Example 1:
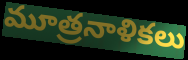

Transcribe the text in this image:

మూత్రనాళికలు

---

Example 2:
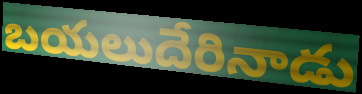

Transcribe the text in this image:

బయలుదేరినాడు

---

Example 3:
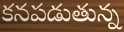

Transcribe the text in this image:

కనపడుతున్న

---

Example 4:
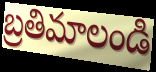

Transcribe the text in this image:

బ్రతిమాలండి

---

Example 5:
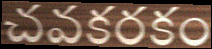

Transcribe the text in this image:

చవకరకం